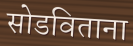
सोडविताना